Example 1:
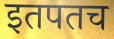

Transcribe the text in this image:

इतपतच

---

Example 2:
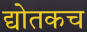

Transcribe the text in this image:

द्योतकच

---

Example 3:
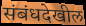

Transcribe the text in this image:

संबंधदेखील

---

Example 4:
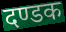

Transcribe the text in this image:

दण्डक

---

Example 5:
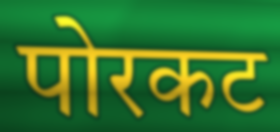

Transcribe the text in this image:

पोरकट